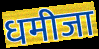
धमीजा